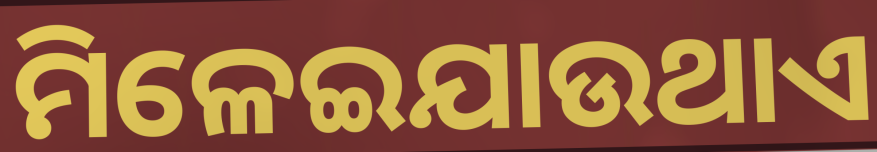
ମିଳେଇଯାଉଥାଏ